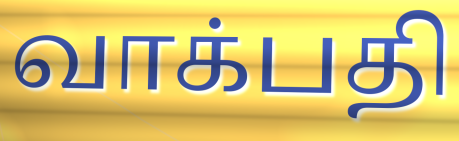
வாக்பதி